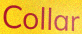
Collar